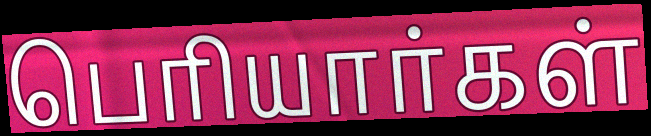
பெரியார்கள்